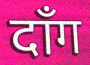
दाँग